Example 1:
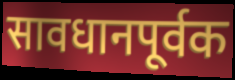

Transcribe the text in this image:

सावधानपूर्वक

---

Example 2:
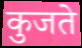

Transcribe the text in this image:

कुजते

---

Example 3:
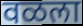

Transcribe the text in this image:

वळला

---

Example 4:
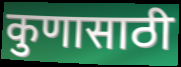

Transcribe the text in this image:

कुणासाठी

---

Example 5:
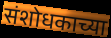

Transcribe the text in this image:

संशोधकाच्या